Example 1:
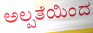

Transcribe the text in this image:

ಅಲ್ಪತೆಯಿಂದ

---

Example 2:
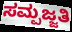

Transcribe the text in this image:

ಸಮ್ಪಜ್ಜತಿ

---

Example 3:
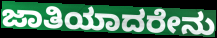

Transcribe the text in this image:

ಜಾತಿಯಾದರೇನು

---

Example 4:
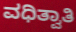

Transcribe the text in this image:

ವಧಿತ್ವಾತಿ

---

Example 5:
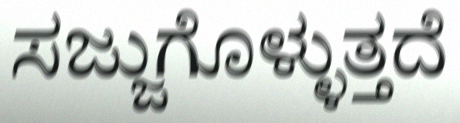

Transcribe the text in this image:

ಸಜ್ಜುಗೊಳ್ಳುತ್ತದೆ